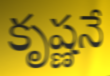
కృష్ణనే